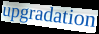
upgradation